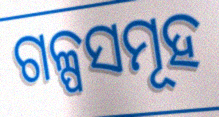
ଗଳ୍ପସମୂହ